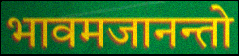
भावमजानन्तो